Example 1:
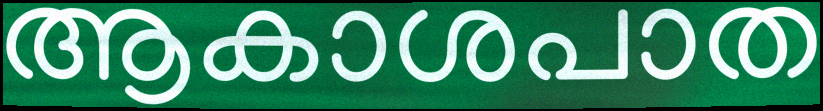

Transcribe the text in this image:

ആകാശപാത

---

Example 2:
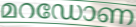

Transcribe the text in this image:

മറഡോണ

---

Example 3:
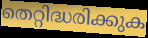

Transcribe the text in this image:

തെറ്റിദ്ധരിക്കുക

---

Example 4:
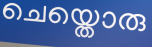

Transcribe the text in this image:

ചെയ്തൊരു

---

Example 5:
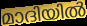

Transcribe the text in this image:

മാദിയിൽ